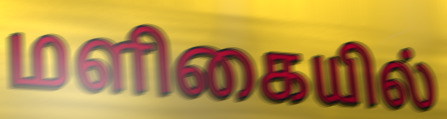
மளிகையில்